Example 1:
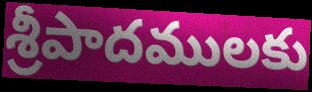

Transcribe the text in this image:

శ్రీపాదములకు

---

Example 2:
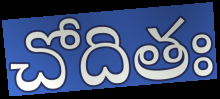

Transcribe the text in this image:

చోదితః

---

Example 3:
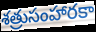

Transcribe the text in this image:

శత్రుసంహారకా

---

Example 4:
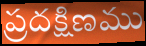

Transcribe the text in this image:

ప్రదక్షిణము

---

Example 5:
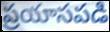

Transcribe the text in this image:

ప్రయాసపడి